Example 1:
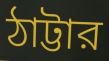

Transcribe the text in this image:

ঠাট্টার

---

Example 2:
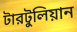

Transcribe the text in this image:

টারটুলিয়ান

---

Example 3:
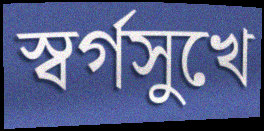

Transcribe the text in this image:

স্বর্গসুখে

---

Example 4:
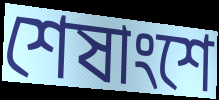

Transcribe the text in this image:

শেষাংশে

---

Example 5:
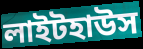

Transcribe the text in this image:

লাইটহাউস